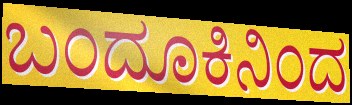
ಬಂದೂಕಿನಿಂದ